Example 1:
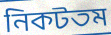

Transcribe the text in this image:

নিকটতম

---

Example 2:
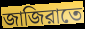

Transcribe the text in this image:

জাজিরাতে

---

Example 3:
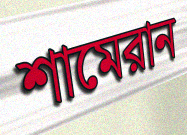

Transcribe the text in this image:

শামেরান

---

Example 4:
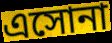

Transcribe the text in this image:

এসোনা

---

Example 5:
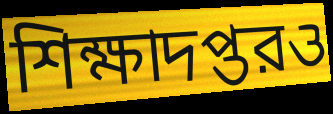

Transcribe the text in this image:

শিক্ষাদপ্তরও